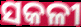
ସକଳୀ